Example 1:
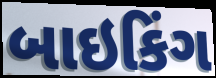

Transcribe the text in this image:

બાઇકિંગ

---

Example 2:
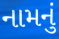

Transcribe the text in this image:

નામનું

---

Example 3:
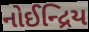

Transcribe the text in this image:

નોઈન્દ્રિય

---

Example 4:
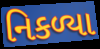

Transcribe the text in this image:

નિકળ્યા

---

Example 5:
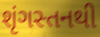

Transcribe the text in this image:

શૃંગસ્તનથી